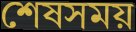
শেষসময়